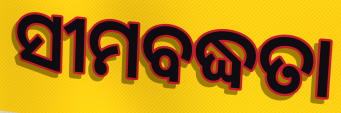
ସୀମବଦ୍ଧତା